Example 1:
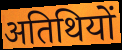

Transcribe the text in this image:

अतिथियों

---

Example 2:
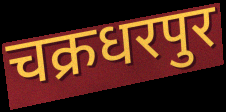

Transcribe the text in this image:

चक्रधरपुर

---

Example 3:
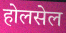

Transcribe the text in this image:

होलसेल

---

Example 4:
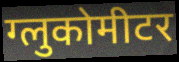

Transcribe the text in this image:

ग्लुकोमीटर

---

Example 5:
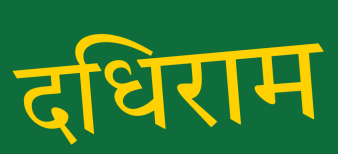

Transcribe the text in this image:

दधिराम